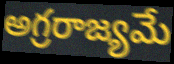
అగ్రరాజ్యమే